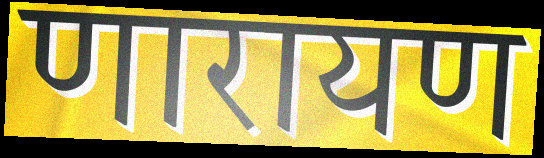
णारायण